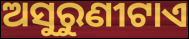
ଅସୁରୁଣୀଟାଏ